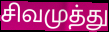
சிவமுத்து